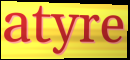
atyre